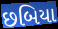
છબિયા